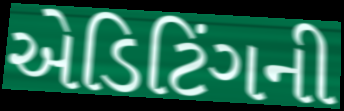
એડિટિંગની